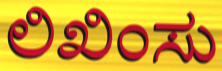
ಲಿಖಿಂಸು